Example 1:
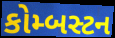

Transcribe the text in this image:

કોમ્બસ્ટન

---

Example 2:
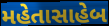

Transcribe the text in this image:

મહેતાસાહેબ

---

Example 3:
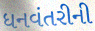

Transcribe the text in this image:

ધનવંતરીની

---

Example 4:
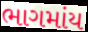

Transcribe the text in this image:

ભાગમાંય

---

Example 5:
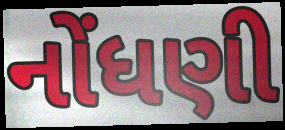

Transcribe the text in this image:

નોંધણી